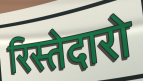
रिस्तेदारो